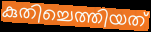
കുതിച്ചെത്തിയത്